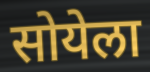
सोयेला